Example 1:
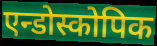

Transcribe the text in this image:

एन्डोस्कोपिक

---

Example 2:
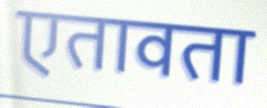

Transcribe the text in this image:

एतावता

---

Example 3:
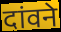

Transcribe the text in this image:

दांवने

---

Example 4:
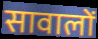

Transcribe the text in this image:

सावालों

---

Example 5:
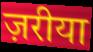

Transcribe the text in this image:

ज़रीया